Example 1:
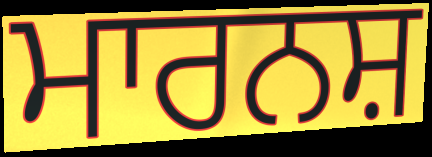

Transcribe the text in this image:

ਮਾਰਨਸ਼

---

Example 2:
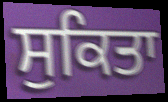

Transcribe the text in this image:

ਸੁਕਿਤਾ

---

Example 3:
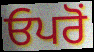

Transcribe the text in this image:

ਓਪਰੋਂ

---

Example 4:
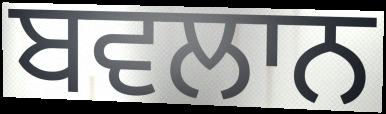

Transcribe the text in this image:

ਬਵਲਾਨ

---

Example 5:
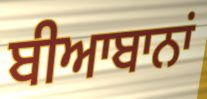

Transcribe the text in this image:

ਬੀਆਬਾਨਾਂ